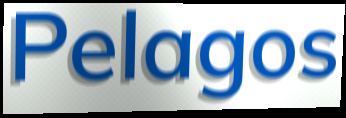
Pelagos